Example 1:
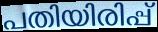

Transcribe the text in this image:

പതിയിരിപ്പ്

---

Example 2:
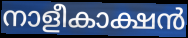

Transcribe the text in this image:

നാളീകാക്ഷൻ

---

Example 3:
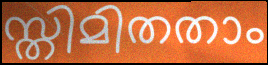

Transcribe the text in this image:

സ്തിമിതതാം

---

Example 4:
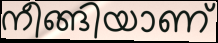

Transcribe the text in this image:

നീങ്ങിയാണ്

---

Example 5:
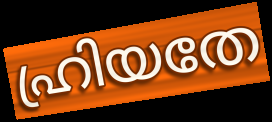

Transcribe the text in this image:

ഹ്രിയതേ